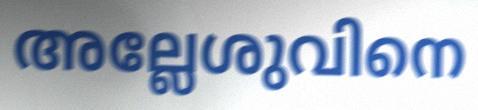
അല്ലേശുവിനെ